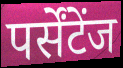
पर्सेंटेंज